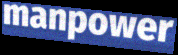
manpower